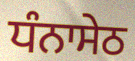
ਧੰਨਾਸੇਠ